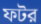
ফটর